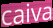
caiva